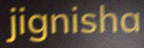
jignisha